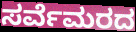
ಸರ್ವೆಮರದ